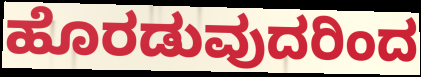
ಹೊರಡುವುದರಿಂದ